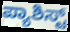
ಪ್ಯಾಶಿಸ್ಟ್